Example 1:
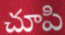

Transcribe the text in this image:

చూపి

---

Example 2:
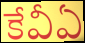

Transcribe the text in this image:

కేవీఏ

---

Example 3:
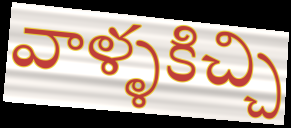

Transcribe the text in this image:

వాళ్ళకిచ్చి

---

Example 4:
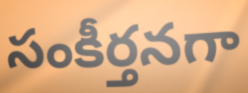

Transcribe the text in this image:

సంకీర్తనగా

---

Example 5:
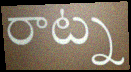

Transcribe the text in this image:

రాట్న